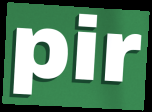
pir